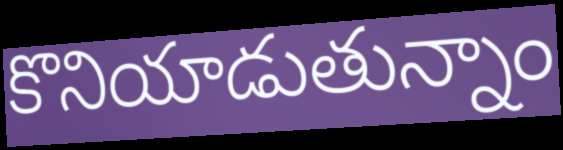
కొనియాడుతున్నాం